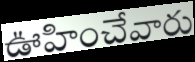
ఊహించేవారు